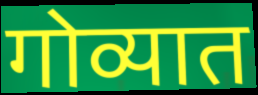
गोव्यात